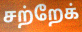
சற்றேக்